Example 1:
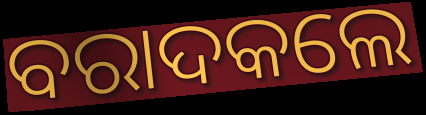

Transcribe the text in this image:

ବରାଦକଲେ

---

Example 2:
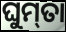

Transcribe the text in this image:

ଘୁମ୍‌ତା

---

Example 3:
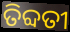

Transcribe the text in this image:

ତିବ୍ଦତୀ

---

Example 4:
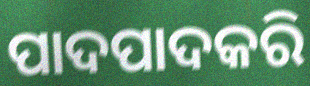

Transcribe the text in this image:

ପାଦପାଦକରି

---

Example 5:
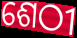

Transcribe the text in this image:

ଶେଠୀ